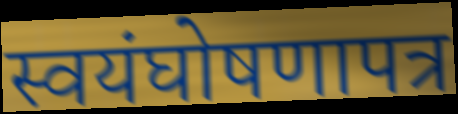
स्वयंघोषणापत्र